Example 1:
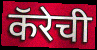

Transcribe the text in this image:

कॅरेची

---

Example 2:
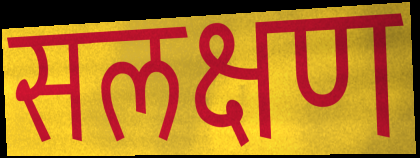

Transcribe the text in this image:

सलक्षण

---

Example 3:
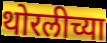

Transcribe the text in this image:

थोरलीच्या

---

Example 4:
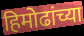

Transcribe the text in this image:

हिमोढांच्या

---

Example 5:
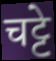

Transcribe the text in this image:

चट्टे